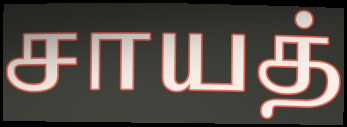
சாயத்